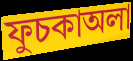
ফুচকাঅলা